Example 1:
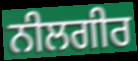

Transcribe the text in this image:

ਨੀਲਗੀਰ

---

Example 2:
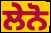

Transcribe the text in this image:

ਲੇਨੋ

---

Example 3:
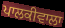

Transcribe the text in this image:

ਪਾਲਕੀਵਾਲਾ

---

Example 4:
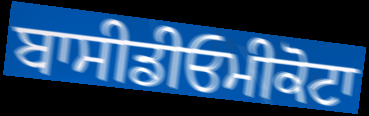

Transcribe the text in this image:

ਬਾਸੀਡੀਓਮੀਕੋਟਾ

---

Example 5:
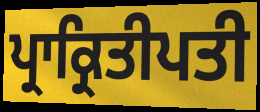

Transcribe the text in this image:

ਪ੍ਰਾਕ੍ਰਿਤੀਪਤੀ